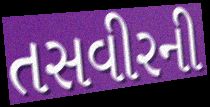
તસવીરની